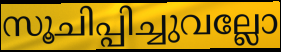
സൂചിപ്പിച്ചുവല്ലോ